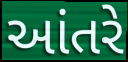
આંતરે